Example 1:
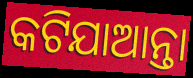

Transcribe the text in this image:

କଟିଯାଆନ୍ତା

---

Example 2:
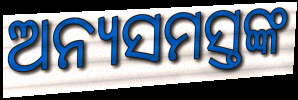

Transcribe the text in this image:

ଅନ୍ୟସମସ୍ତଙ୍କ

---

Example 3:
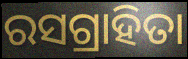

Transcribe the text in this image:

ରସଗ୍ରାହିତା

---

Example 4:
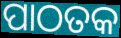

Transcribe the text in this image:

ପାଠତକ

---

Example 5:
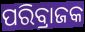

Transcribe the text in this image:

ପରିବ୍ରାଜକ